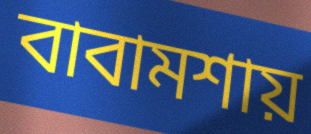
বাবামশায়